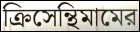
ক্রিসেন্থিমামের